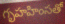
గృహహింసతో